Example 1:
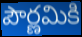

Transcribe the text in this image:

పౌర్ణమికి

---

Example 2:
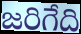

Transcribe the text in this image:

జరిగేది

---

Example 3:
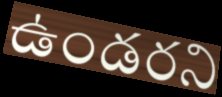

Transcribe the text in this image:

ఉండరని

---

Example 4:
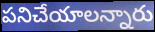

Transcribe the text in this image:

పనిచేయాలన్నారు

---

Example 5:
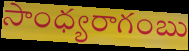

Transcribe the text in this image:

సాంధ్యరాగంబు